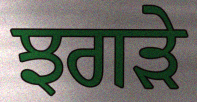
ਝਗਡ਼ੇ